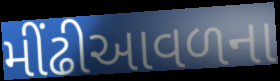
મીંઢીઆવળના